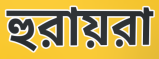
হুরায়রা